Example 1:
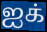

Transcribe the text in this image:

ஐக்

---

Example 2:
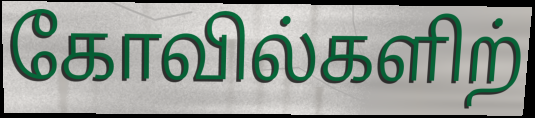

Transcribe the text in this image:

கோவில்களிற்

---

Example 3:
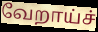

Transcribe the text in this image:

வேறாய்ச்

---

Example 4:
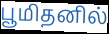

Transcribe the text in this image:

பூமிதனில்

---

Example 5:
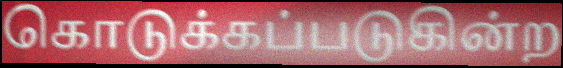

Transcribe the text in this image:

கொடுக்கப்படுகின்ற